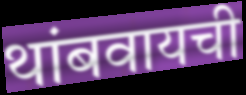
थांबवायची